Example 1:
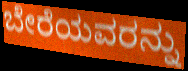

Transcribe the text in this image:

ಬೇರೆಯವರನ್ನು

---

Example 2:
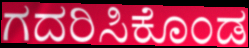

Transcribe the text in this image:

ಗದರಿಸಿಕೊಂಡ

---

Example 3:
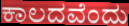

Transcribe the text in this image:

ಕಾಲದವೆಂದು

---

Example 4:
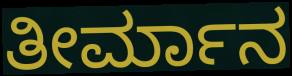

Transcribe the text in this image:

ತೀರ್ಮಾನ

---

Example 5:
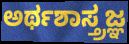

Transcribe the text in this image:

ಅರ್ಥಶಾಸ್ತ್ರಜ್ಞ